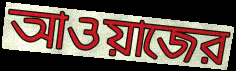
আওয়াজের